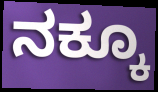
ನಕ್ಕೂ